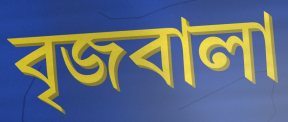
বৃজবালা